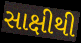
સાક્ષીથી